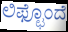
ಲಿಫ್ಟೊಂದೆ